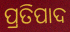
ପ୍ରତିପାଦ